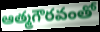
ఆత్మగౌరవంతో